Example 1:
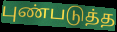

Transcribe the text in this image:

புண்படுத்த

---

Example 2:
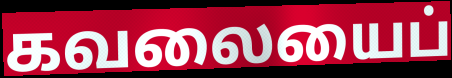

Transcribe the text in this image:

கவலையைப்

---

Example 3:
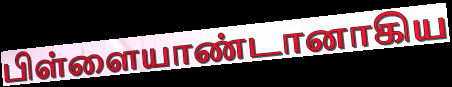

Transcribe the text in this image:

பிள்ளையாண்டானாகிய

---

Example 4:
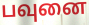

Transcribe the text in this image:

பவுனை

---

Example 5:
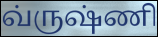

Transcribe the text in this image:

வ்ருஷ்ணி